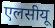
एलसीयू